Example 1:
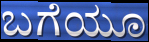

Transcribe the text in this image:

ಬಗೆಯೂ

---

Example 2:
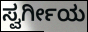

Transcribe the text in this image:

ಸ್ವರ್ಗೀಯ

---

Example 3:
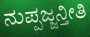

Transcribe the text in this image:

ನುಪ್ಪಜ್ಜನ್ತೀತಿ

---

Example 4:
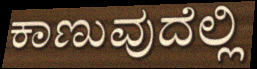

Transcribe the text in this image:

ಕಾಣುವುದೆಲ್ಲಿ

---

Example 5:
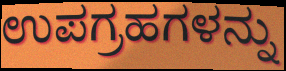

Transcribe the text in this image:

ಉಪಗ್ರಹಗಳನ್ನು